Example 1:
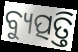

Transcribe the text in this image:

ବ୍ୟୁତ୍ପତ୍ତି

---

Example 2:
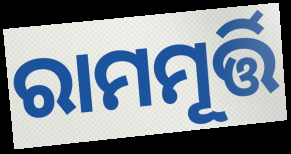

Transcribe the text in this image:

ରାମମୂର୍ତ୍ତି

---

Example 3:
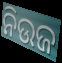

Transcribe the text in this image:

ନିଉଜ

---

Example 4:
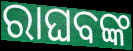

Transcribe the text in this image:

ରାଘବଙ୍କ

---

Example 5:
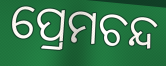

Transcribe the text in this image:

ପ୍ରେମଚନ୍ଦ